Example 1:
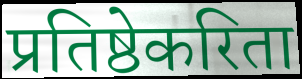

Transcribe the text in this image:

प्रतिष्ठेकरिता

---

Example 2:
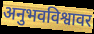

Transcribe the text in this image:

अनुभवविश्वावर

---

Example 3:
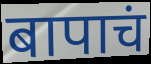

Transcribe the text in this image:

बापाचं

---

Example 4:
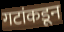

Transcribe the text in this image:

गटांकडून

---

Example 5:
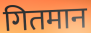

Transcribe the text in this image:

गितमान